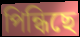
পিন্ধিছে